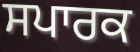
ਸਪਾਰਕ